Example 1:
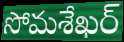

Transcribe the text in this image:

సోమశేఖర్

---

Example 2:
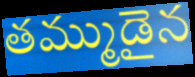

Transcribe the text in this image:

తమ్ముడైన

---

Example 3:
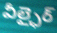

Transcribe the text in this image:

వీల్ఛైర్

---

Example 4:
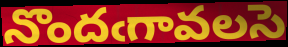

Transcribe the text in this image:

నొందఁగావలసె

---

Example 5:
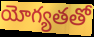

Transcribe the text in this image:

యోగ్యతతో